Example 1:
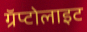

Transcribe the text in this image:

ग्रॅप्टोलाइट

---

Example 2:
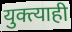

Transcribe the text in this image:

युक्त्याही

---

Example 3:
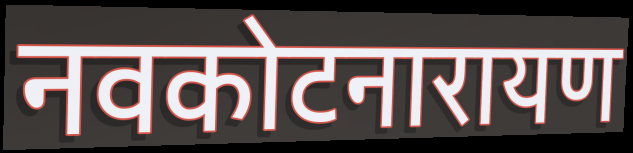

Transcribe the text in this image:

नवकोटनारायण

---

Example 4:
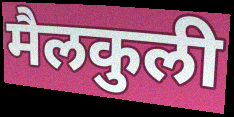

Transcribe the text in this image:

मैलकुली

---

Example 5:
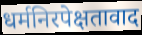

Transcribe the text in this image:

धर्मनिरपेक्षतावाद